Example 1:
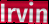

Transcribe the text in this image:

Irvin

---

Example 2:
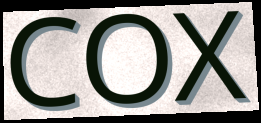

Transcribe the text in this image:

COX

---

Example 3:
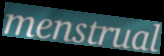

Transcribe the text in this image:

menstrual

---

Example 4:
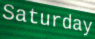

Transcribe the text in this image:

Saturday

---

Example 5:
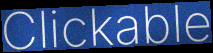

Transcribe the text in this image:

Clickable